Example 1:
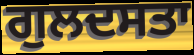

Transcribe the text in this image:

ਗੁਲਦਸਤਾ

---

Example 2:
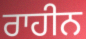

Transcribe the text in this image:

ਰਾਹੀਨ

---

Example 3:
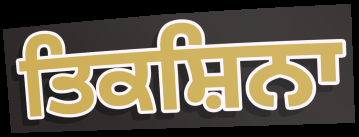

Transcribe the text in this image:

ਤਿਕਸ਼ਿਨਾ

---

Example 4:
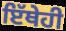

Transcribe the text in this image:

ਇੱਥੇਹੀ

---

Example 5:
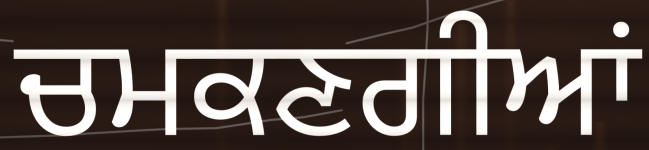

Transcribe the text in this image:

ਚਮਕਣਗੀਆਂ